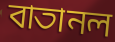
বাতানল